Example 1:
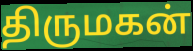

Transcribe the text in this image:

திருமகன்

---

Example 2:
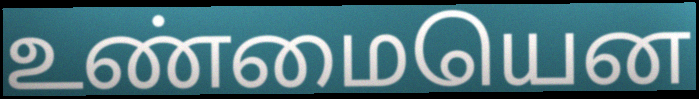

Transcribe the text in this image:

உண்மையென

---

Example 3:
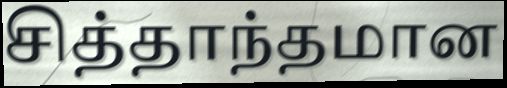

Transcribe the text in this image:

சித்தாந்தமான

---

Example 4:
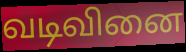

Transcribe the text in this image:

வடிவினை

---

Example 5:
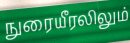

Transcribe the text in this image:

நுரையீரலிலும்